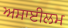
ਅਸਾਈਲਮ